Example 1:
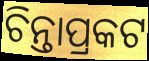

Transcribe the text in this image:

ଚିନ୍ତାପ୍ରକଟ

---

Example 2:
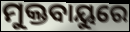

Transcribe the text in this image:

ମୁକ୍ତବାୟୁରେ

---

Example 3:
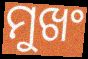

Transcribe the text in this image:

ମୁଖଂ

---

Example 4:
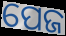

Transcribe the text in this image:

ପେଜ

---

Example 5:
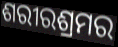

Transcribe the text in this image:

ଶରୀରଶ୍ରମର